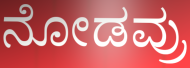
ನೋಡವ್ರು